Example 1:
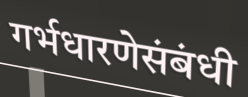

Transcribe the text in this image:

गर्भधारणेसंबंधी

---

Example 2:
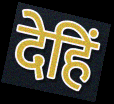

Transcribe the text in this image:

देहिं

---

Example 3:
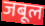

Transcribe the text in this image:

जबूल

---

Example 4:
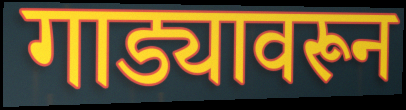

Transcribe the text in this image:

गाड्यावरून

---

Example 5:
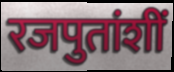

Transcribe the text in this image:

रजपुतांशीं